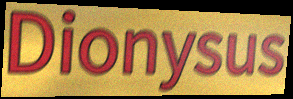
Dionysus